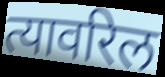
त्यावरिल